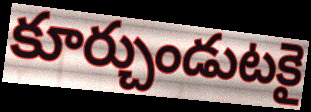
కూర్చుండుటకై